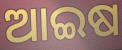
ଆଇଷ